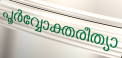
പൂർവ്വോക്തരീത്യാ